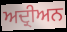
ਅਦ੍ਰੀਅਨ